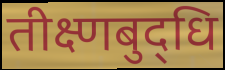
तीक्ष्णबुद्धि